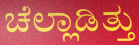
ಚೆಲ್ಲಾಡಿತ್ತು